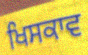
ਖਿਸਕਾਵ